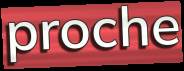
proche